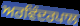
ਅਰਵਿੰਦਰਪਾਲ